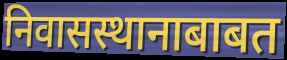
निवासस्थानाबाबत